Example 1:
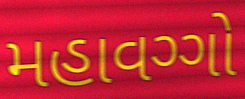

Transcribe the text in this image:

મહાવગ્ગો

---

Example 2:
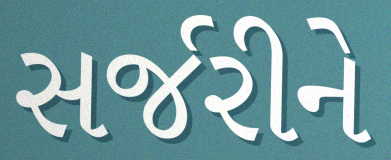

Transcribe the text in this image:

સર્જરીને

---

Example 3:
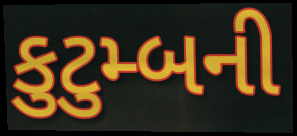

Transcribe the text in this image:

કુટુમ્બની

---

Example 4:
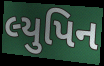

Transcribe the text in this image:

લ્યુપિન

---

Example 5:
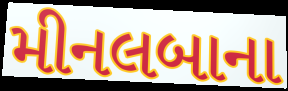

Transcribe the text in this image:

મીનલબાના